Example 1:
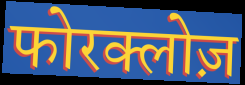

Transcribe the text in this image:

फोरक्लोज़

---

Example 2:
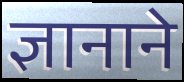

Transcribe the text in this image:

ज्ञानाने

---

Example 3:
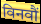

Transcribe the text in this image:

विनवौं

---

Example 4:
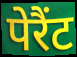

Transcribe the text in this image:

पेरैंट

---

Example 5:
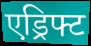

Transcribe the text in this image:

एड्रिफ्ट